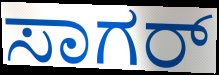
ಸಾಗರ್